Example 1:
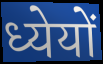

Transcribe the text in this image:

ध्येयों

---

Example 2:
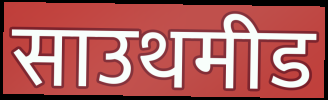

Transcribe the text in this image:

साउथमीड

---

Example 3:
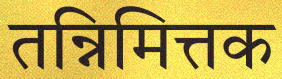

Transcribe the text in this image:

तन्निमित्तक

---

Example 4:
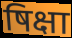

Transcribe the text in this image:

षिक्षा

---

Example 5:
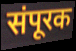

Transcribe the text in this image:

संपूरक